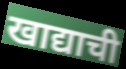
खाद्याची